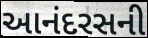
આનંદરસની